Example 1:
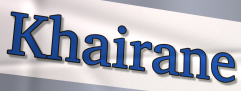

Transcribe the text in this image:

Khairane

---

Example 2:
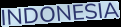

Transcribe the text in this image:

INDONESIA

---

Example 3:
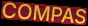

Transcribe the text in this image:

COMPAS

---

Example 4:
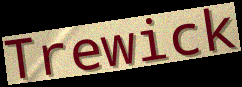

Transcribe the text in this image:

Trewick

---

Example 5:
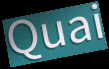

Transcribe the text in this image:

Quai